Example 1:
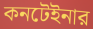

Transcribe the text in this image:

কনটেইনার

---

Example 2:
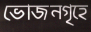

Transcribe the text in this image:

ভোজনগৃহে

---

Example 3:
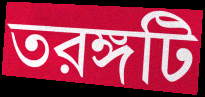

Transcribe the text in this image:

তরঙ্গটি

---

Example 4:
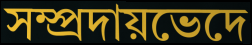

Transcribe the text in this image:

সম্প্রদায়ভেদে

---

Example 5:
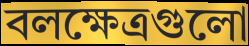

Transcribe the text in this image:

বলক্ষেত্রগুলো